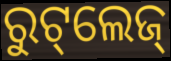
ରୁଟ୍‌ଲେଜ୍